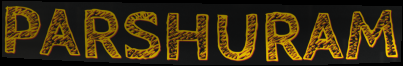
PARSHURAM